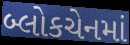
બ્લોકચેનમાં